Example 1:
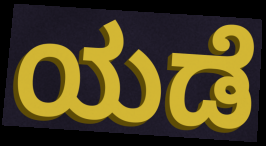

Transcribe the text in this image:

ಯಡೆ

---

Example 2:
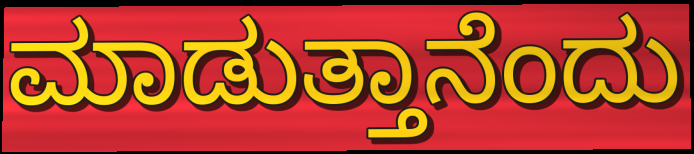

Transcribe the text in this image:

ಮಾಡುತ್ತಾನೆಂದು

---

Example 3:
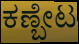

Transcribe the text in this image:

ಕಣ್ಬೇಟ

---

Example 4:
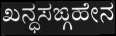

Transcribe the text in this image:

ಖನ್ಧಸಙ್ಗಹೇನ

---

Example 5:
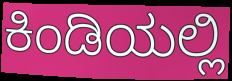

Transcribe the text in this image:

ಕಿಂಡಿಯಲ್ಲಿ